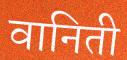
वानिती